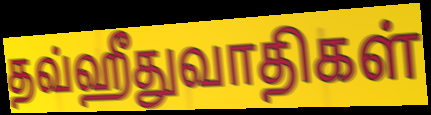
தவ்ஹீதுவாதிகள்